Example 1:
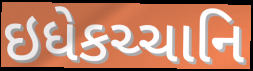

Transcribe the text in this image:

ઇધેકચ્ચાનિ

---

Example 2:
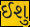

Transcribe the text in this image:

ઈશુ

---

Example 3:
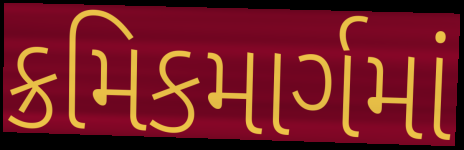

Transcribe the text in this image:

ક્રમિકમાર્ગમાં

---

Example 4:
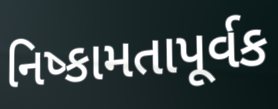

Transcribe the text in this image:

નિષ્કામતાપૂર્વક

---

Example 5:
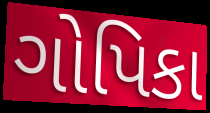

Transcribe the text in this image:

ગોપિકા